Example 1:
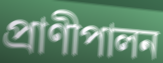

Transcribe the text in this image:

প্রাণীপালন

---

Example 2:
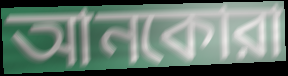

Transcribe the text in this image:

আনকোরা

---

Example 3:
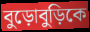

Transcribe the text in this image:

বুড়োবুড়িকে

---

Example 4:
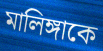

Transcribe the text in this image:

মালিঙ্গাকে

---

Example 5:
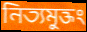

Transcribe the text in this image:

নিত্যমুক্তং